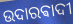
ଉଦାରଵାଦୀ